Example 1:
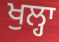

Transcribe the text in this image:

ਖੁਲ੍ਹਾ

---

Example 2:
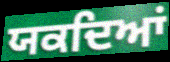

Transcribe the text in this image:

ਯਕਦਿਆਂ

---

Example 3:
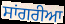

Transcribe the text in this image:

ਸਾਂਗਰੀਆ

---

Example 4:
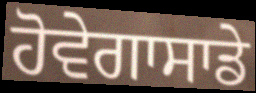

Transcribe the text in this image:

ਹੋਵੇਗਾਸਾਡੇ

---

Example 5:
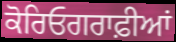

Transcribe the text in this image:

ਕੋਰਿਓਗਰਾਫ਼ੀਆਂ